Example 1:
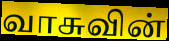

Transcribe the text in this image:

வாசுவின்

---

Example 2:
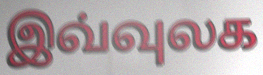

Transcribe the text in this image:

இவ்வுலக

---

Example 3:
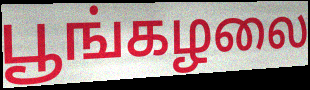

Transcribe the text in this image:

பூங்கழலை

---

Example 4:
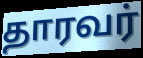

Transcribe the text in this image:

தாரவர்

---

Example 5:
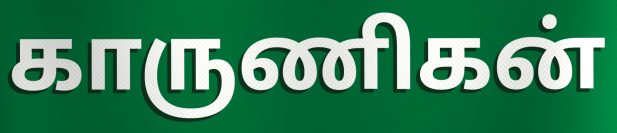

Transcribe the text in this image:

காருணிகன்